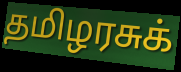
தமிழரசுக்